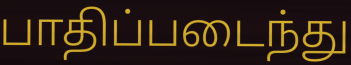
பாதிப்படைந்து